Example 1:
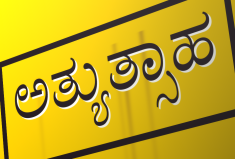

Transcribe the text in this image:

ಅತ್ಯುತ್ಸಾಹ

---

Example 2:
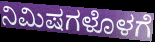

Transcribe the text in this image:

ನಿಮಿಷಗಳೊಳಗೆ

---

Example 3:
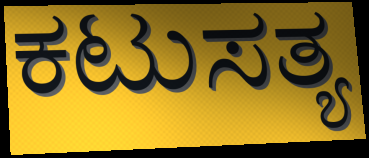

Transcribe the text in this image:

ಕಟುಸತ್ಯ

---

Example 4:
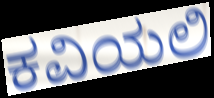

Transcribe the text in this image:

ಕವಿಯಲಿ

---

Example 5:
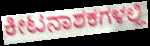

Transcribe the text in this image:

ಕೀಟನಾಶಕಗಳಲ್ಲಿ